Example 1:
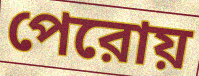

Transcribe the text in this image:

পেরোয়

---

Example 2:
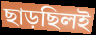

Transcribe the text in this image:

ছাড়ছিলই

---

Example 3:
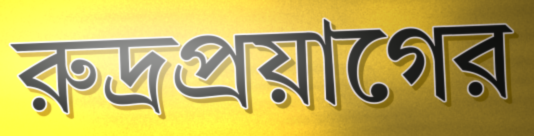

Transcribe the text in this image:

রুদ্রপ্রয়াগের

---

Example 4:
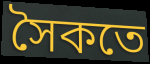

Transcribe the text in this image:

সৈকতে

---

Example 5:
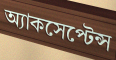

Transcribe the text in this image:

অ্যাকসেপ্টেন্স